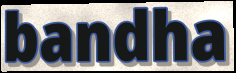
bandha